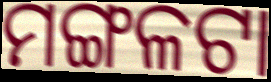
ମଙ୍ଗଳଟା